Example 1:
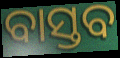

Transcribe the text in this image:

ବାସ୍ତବ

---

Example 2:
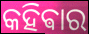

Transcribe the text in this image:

କହିଵାର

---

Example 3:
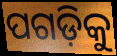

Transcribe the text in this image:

ପଗଡ଼ିକୁ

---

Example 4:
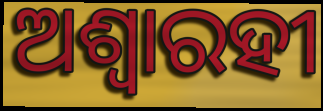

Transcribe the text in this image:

ଅଶ୍ୱାରହୀ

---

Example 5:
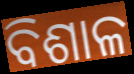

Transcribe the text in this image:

ବିଶାଳ